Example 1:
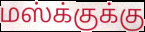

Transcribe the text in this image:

மஸ்க்குக்கு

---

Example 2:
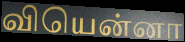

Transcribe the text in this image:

வியென்னா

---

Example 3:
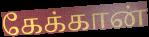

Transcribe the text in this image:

கேக்கான்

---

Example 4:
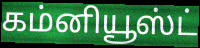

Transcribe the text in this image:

கம்னியூஸ்ட்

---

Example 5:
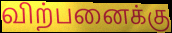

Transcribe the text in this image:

விற்பனைக்கு